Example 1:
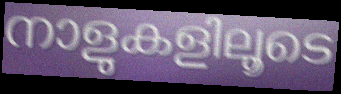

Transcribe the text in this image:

നാളുകളിലൂടെ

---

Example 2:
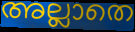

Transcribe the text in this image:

അല്ലാതെ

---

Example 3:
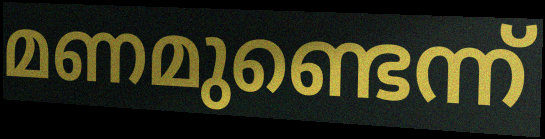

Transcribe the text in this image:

മണമുണ്ടെന്ന്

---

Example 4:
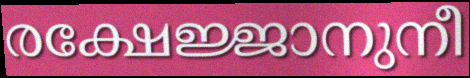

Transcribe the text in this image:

രക്ഷേജ്ജാനുനീ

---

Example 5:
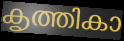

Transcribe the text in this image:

കൃത്തികാ